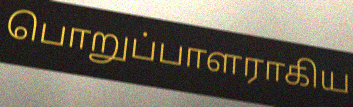
பொறுப்பாளராகிய